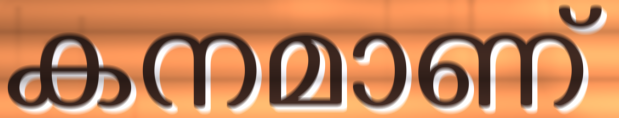
കനമാണ്